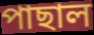
পাছাল